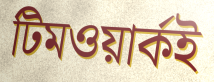
টিমওয়ার্কই